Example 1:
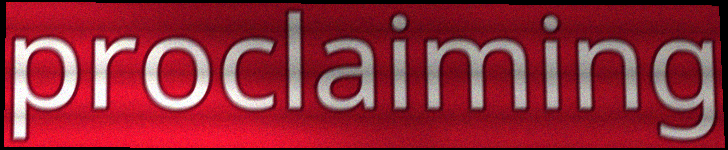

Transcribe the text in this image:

proclaiming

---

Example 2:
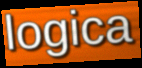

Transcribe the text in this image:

logica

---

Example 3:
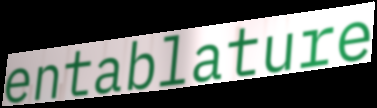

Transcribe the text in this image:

entablature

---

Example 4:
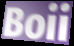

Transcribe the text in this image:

Boii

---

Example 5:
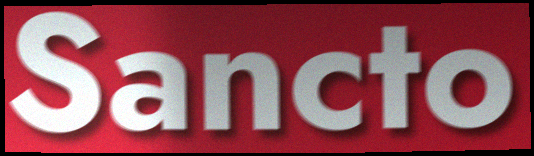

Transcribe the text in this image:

Sancto